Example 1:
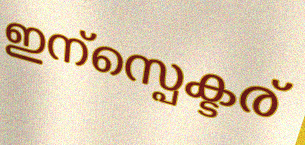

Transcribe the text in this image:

ഇന്സ്പെക്ടര്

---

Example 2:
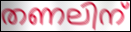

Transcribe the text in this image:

തണലിന്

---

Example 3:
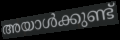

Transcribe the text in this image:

അയാൾക്കുണ്ട്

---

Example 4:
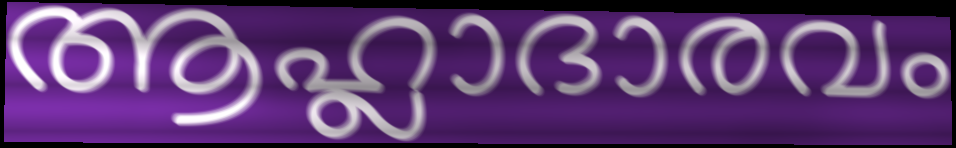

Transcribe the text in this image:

ആഹ്ലാദാരവം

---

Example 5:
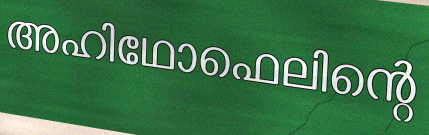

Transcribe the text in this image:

അഹിഥോഫെലിന്റെ